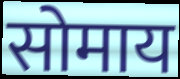
सोमाय